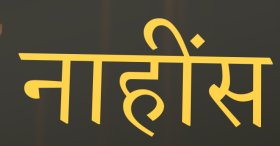
नाहींस